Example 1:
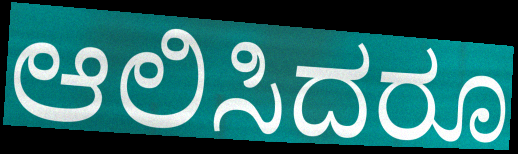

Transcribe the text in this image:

ಆಲಿಸಿದರೂ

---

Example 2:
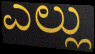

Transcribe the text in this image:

ಎಲ್ಲು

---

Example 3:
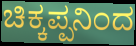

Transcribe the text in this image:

ಚಿಕ್ಕಪ್ಪನಿಂದ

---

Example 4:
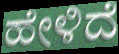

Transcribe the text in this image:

ಹೇಳಿದೆ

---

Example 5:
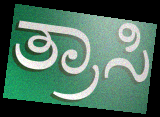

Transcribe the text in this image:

ತ್ರಾಸಿ